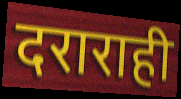
दराराही